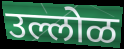
उल्लोळ